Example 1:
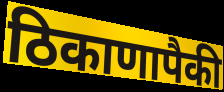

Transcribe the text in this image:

ठिकाणापैकी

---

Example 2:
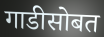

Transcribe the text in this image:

गाडीसोबत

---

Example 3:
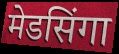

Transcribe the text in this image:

मेडसिंगा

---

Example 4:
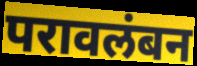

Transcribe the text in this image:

परावलंबन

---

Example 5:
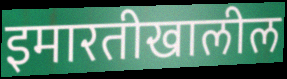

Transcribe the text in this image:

इमारतीखालील